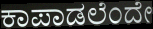
ಕಾಪಾಡಲೆಂದೇ